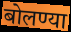
बोलण्या